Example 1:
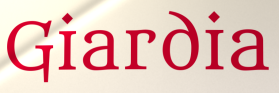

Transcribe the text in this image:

Giardia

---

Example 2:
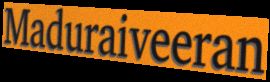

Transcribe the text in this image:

Maduraiveeran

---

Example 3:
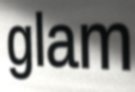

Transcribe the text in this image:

glam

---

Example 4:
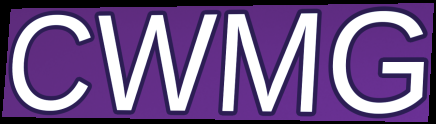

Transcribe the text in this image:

CWMG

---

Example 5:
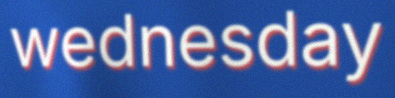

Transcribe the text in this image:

wednesday